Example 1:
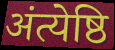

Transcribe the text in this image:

अंत्येष्ठि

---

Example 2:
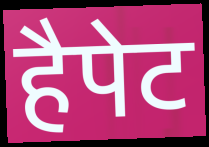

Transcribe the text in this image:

हैपेट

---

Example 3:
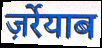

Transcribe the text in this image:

ज़र्रेयाब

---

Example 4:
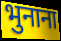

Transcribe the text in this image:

भुनाना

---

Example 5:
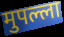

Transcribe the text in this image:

मुपल्ला